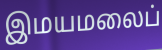
இமயமலைப்